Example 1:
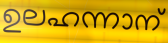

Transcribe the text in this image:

ഉലഹന്നാന്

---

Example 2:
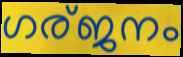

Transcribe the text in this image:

ഗര്ജനം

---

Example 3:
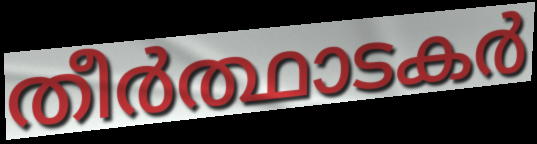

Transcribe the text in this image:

തീർത്ഥാടകർ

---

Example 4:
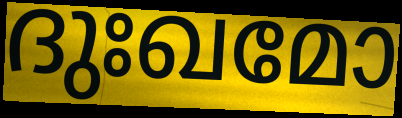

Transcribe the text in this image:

ദുഃഖമോ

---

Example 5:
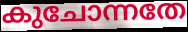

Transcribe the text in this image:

കുചോന്നതേ